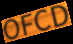
OFCD